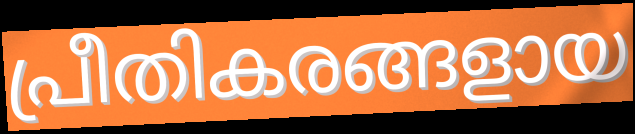
പ്രീതികരങ്ങളായ